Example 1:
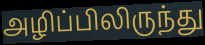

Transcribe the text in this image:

அழிப்பிலிருந்து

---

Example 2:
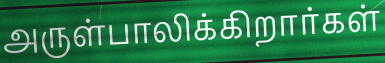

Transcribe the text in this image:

அருள்பாலிக்கிறார்கள்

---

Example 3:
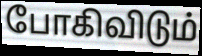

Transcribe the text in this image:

போகிவிடும்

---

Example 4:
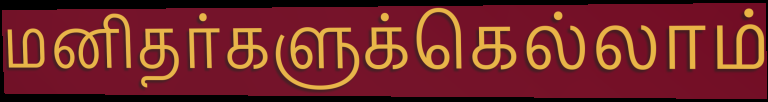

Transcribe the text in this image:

மனிதர்களுக்கெல்லாம்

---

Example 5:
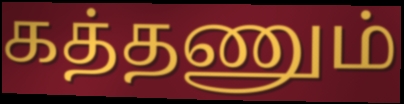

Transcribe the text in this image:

கத்தணும்